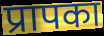
प्रापका